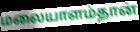
மலையாளம்தான்